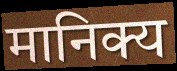
मानिक्य